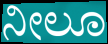
ನೀಲೂ